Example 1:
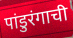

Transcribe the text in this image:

पांडुरंगाची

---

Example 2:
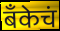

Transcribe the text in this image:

बॅंकेचं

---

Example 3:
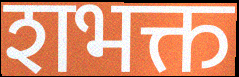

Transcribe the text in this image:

शभक्त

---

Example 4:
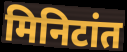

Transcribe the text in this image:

मिनिटांत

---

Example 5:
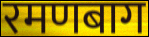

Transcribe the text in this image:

रमणबाग